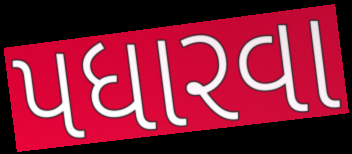
પધારવા